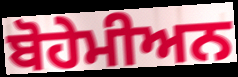
ਬੋਹੇਮੀਅਨ